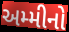
અમ્મીનો